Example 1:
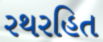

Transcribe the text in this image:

રથરહિત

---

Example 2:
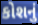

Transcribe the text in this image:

કોશનું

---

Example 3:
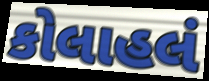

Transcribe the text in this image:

કોલાહલં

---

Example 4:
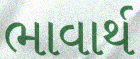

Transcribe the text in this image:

ભાવાર્થ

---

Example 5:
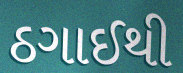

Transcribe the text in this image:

ઠગાઈથી